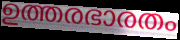
ഉത്തരഭാരതം